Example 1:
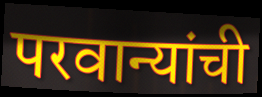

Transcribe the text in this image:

परवान्यांची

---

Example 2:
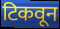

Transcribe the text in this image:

टिकवून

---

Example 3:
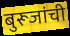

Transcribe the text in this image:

बुरूजांची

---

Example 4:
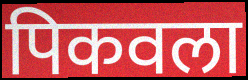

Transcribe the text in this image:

पिकवला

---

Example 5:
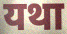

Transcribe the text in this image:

यथा